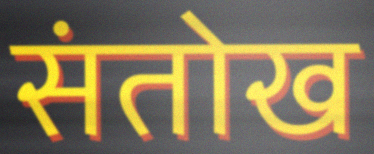
संतोख